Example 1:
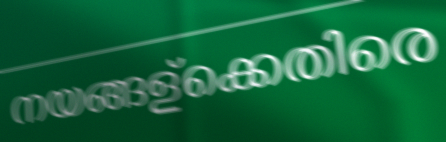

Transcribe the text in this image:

നയങ്ങള്ക്കെതിരെ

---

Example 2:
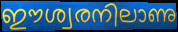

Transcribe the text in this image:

ഈശ്വരനിലാണു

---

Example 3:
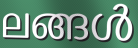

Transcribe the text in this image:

ലങ്ങൾ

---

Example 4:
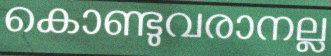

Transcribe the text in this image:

കൊണ്ടുവരാനല്ല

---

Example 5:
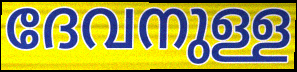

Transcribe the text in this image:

ദേവനുള്ള